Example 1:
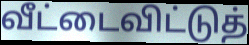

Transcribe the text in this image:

வீட்டைவிட்டுத்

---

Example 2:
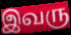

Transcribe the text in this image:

இவரு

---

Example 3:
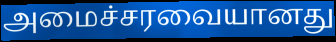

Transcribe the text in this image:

அமைச்சரவையானது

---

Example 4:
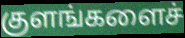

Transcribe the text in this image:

குளங்களைச்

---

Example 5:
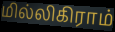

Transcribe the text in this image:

மில்லிகிராம்